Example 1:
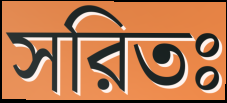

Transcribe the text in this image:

সরিতঃ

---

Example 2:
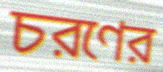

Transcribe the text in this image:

চরণের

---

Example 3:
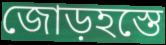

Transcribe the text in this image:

জোড়হস্তে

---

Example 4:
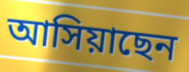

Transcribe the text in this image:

আসিয়াছেন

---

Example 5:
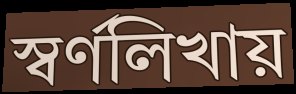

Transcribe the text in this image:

স্বর্ণলিখায়